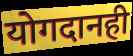
योगदानही